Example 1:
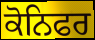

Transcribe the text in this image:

ਕੋਨਿਫਰ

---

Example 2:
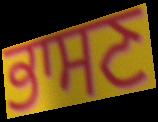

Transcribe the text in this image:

ਭਾਸਣ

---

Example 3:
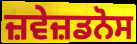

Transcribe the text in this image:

ਜ਼ਵੇਜ਼ਡਨੋਸ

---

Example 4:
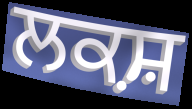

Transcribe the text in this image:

ਲਕ਼ਸ਼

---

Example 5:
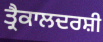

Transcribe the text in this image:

ਤ੍ਰੈਕਾਲਦਰਸ਼ੀ